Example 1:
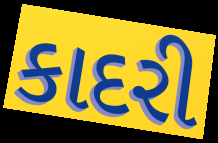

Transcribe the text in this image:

કાદરી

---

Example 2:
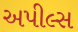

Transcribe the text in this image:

અપીલ્સ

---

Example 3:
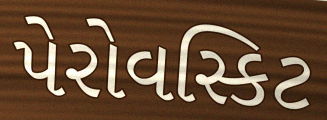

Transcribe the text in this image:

પેરોવસ્કિટ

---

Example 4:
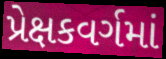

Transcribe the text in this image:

પ્રેક્ષકવર્ગમાં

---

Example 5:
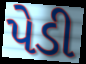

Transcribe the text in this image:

પેડી